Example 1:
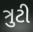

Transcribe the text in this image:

ત્રુટી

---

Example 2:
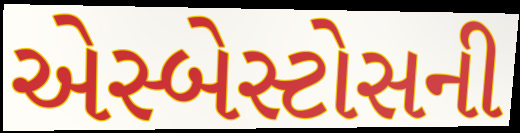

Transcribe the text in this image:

એસ્બેસ્ટોસની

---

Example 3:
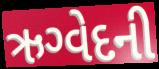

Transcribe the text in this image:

ઋગ્વેદની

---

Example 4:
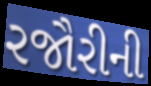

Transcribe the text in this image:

રજૌરીની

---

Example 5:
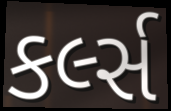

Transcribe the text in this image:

કર્લ્સ